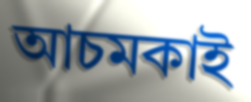
আচমকাই